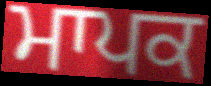
ਮਾਪਕ